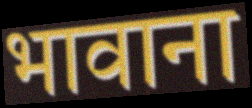
भावाना